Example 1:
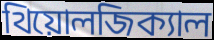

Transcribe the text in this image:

থিয়োলজিক্যাল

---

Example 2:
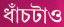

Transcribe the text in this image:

ধাঁচটাও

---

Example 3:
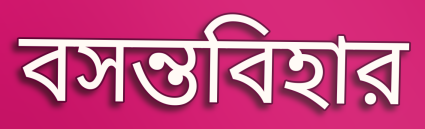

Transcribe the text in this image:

বসন্তবিহার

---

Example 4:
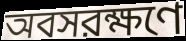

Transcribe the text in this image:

অবসরক্ষণে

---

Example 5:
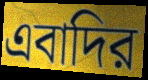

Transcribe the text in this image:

এবাদির